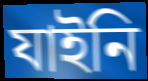
যাইনি